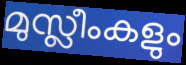
മുസ്ലീംകളും